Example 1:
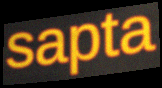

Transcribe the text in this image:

sapta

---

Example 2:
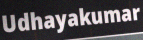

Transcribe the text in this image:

Udhayakumar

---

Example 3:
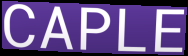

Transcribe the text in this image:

CAPLE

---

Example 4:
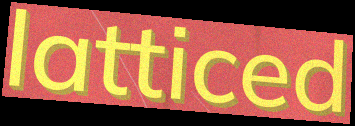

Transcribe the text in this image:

latticed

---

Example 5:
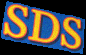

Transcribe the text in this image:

SDS